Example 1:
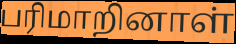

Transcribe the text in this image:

பரிமாறினாள்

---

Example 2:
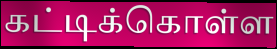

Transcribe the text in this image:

கட்டிக்கொள்ள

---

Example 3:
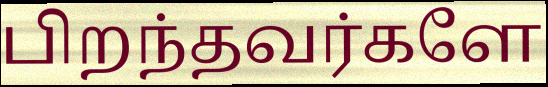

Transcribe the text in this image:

பிறந்தவர்களே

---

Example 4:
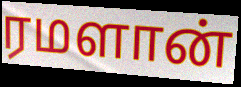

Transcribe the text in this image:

ரமளான்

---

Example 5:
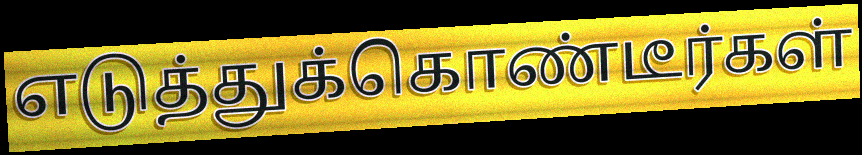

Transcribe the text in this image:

எடுத்துக்கொண்டீர்கள்